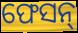
ଫେସନ୍